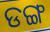
ଡଙ୍ଗ